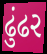
ઢુંઢર